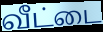
வீட்டை